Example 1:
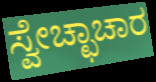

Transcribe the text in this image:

ಸ್ವೇಚ್ಛಾಚಾರ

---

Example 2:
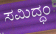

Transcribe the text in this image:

ಸಮಿದ್ಧಂ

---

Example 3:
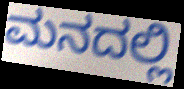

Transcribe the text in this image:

ಮನದಲ್ಲಿ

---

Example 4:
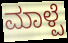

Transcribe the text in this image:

ಮಾಳ್ಪೆ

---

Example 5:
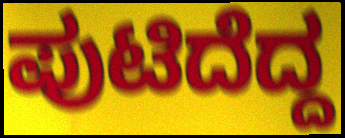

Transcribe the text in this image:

ಪುಟಿದೆದ್ದ